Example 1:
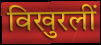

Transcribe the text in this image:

विखुरलीं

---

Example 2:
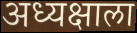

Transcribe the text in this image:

अध्यक्षाला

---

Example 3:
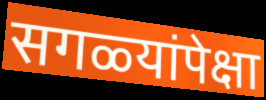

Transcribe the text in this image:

सगळ्यांपेक्षा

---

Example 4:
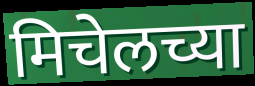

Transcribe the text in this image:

मिचेलच्या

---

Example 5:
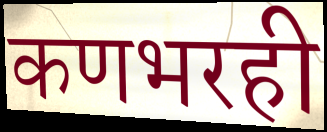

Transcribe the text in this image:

कणभरही